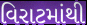
વિરાટમાંથી